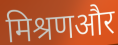
मिश्रणऔर